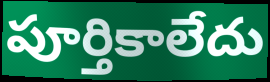
పూర్తికాలేదు